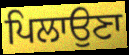
ਪਿਲਾਉਣਾ